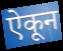
ऐकून